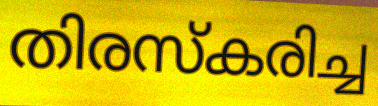
തിരസ്കരിച്ച